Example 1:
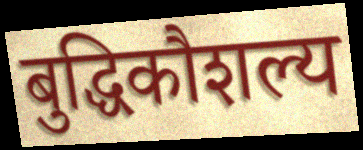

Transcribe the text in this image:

बुद्धिकौशल्य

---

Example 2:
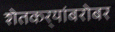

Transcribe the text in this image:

शेतकर्‍यांबरोबर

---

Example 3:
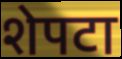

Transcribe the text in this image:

शेपटा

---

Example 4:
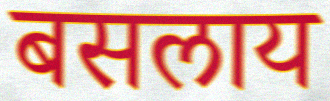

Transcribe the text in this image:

बसलाय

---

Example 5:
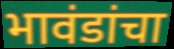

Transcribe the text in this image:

भावंडांचा